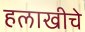
हलाखीचे